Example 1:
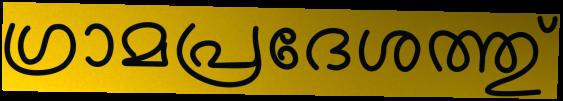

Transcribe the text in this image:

ഗ്രാമപ്രദേശത്തു്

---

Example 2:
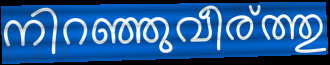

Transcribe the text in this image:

നിറഞ്ഞുവീര്ത്തു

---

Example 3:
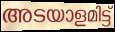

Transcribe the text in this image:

അടയാളമിട്ട്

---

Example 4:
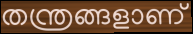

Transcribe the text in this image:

തന്ത്രങ്ങളാണ്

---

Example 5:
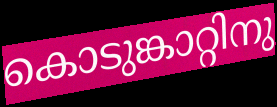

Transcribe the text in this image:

കൊടുങ്കാറ്റിനു